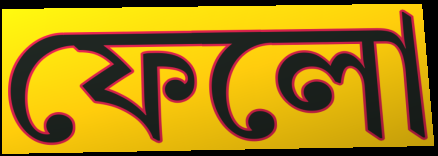
ফেলো